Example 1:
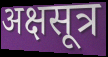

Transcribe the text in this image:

अक्षसूत्र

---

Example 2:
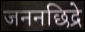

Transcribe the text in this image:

जननछिद्रे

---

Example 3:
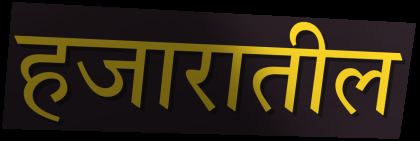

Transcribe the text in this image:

हजारातील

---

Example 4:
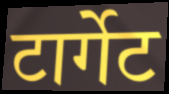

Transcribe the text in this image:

टार्गेट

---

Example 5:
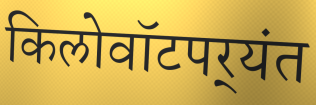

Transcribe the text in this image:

किलोवॉटपर्यंत